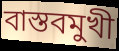
বাস্তবমুখী